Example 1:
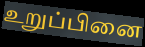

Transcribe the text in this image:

உறுப்பினை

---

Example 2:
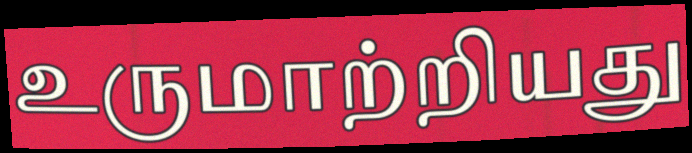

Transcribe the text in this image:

உருமாற்றியது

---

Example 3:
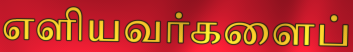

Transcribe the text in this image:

எளியவர்களைப்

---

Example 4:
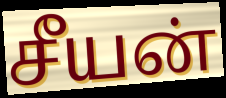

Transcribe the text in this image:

சீயன்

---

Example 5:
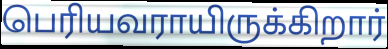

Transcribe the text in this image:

பெரியவராயிருக்கிறார்